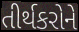
તીર્થકરોને